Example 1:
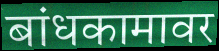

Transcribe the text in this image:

बांधकामावर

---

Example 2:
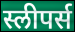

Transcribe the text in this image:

स्लीपर्स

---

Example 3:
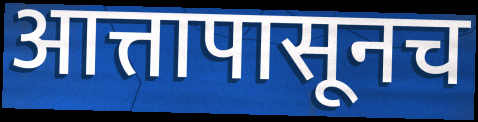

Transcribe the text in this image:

आत्तापासूनच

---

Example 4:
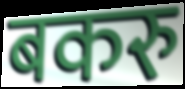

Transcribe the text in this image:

बकरु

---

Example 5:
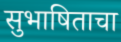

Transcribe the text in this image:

सुभाषिताचा